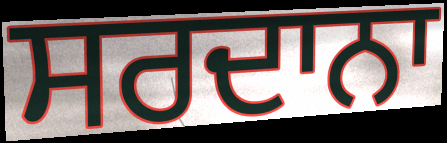
ਸਰਦਾਨਾ